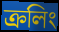
ক্রলিং